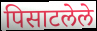
पिसाटलेले